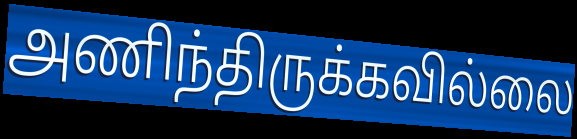
அணிந்திருக்கவில்லை